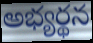
అభ్యర్థన